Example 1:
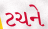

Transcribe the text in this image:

ટચને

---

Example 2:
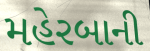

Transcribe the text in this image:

મહેરબાની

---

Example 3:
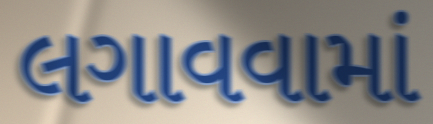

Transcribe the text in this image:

લગાવવામાં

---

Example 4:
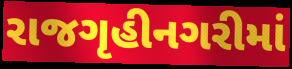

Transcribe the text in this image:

રાજગૃહીનગરીમાં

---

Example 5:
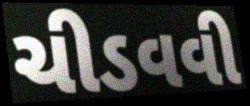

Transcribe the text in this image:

ચીડવવી